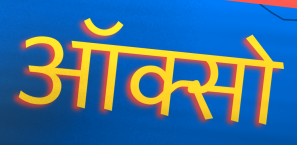
ऑक्सो